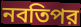
নবতিপর